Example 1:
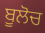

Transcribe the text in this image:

ਬੂਲੋਚ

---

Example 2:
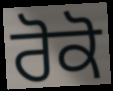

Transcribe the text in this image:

ਰੋਕੋ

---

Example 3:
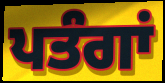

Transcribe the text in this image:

ਪਤੰਗਾਂ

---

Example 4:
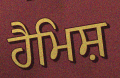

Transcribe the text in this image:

ਹੈਮਿਸ਼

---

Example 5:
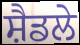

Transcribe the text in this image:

ਸ਼ੈਡਲੇ